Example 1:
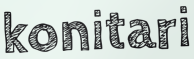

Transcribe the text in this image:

konitari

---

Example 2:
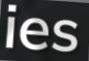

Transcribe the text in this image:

ies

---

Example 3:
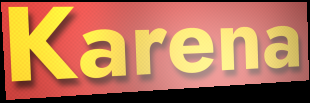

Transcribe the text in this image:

Karena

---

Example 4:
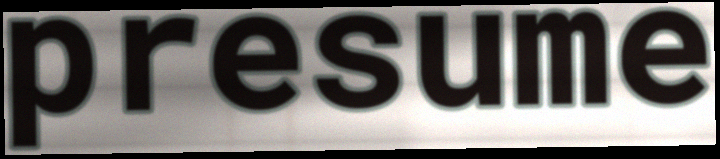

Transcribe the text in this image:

presume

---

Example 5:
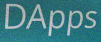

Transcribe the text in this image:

DApps